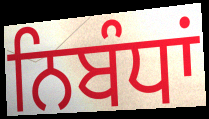
ਨਿਬੰਧਾਂ